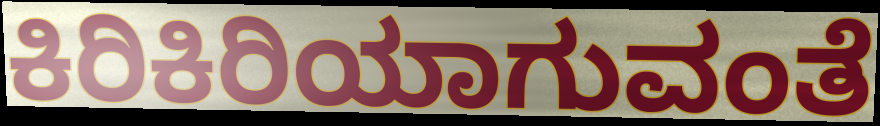
ಕಿರಿಕಿರಿಯಾಗುವಂತೆ